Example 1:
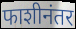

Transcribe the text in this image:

फाशीनंतर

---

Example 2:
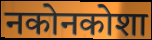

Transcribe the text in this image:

नकोनकोशा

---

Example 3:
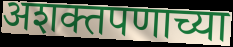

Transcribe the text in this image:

अशक्तपणाच्या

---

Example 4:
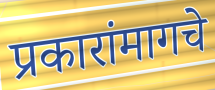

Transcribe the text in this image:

प्रकारांमागचे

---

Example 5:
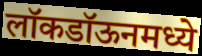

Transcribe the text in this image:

लॉकडॉऊनमध्ये